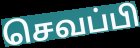
செவப்பி